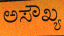
ಅಸೌಖ್ಯ